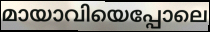
മായാവിയെപ്പോലെ